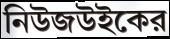
নিউজউইকের